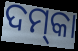
ଦମ୍‌କା